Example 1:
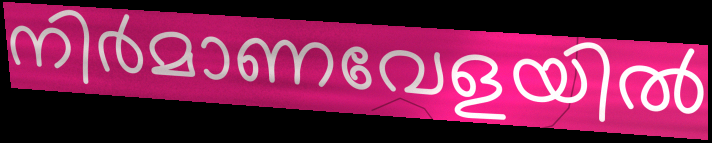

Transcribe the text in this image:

നിർമാണവേളയിൽ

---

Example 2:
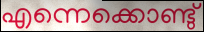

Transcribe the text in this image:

എന്നെക്കൊണ്ടു്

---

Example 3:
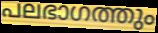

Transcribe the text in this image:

പലഭാഗത്തും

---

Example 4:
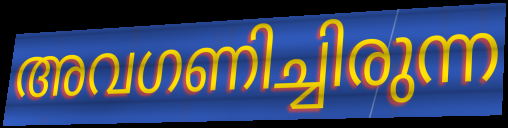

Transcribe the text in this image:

അവഗണിച്ചിരുന്ന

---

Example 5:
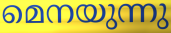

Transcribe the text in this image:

മെനയുന്നു